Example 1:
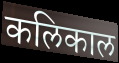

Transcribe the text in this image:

कलिकाल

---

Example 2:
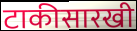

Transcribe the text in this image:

टाकीसारखी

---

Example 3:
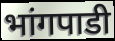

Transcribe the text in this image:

भांगपाडी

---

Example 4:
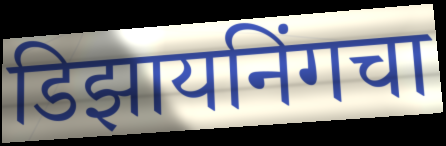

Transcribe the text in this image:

डिझायनिंगचा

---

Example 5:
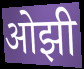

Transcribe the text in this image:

ओझी